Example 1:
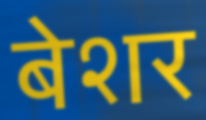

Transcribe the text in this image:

बेशर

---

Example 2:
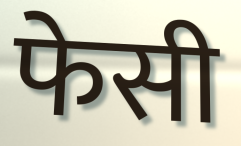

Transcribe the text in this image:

फेसी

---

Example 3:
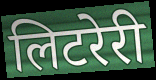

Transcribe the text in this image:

लिटरेरी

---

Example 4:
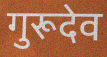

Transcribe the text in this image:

गुरूदेव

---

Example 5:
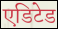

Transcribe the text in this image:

एडिटेड